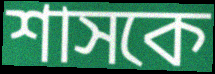
শাসকে